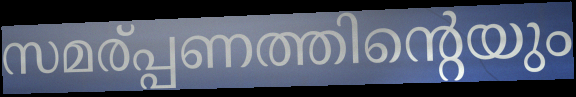
സമര്പ്പണത്തിന്റെയും